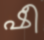
ഷീ